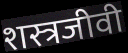
शस्त्रजीवी